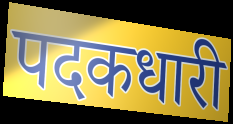
पदकधारी